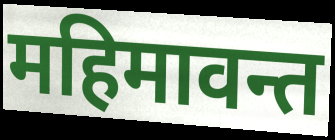
महिमावन्त